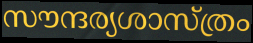
സൗന്ദര്യശാസ്ത്രം